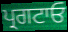
ਪ੍ਰਗਟਾਓ